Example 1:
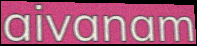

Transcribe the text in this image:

aivanam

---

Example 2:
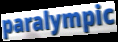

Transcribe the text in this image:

paralympic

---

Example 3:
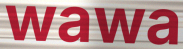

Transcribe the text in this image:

wawa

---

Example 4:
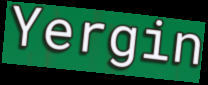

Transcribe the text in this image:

Yergin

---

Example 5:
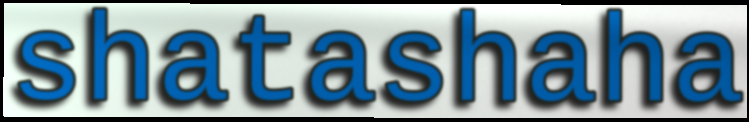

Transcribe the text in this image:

shatashaha